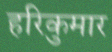
हरिकुमार